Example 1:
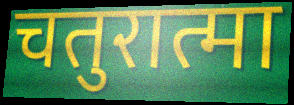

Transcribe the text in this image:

चतुरात्मा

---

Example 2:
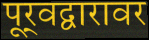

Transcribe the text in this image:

पूर्वद्वारावर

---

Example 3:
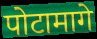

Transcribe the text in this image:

पोटामागे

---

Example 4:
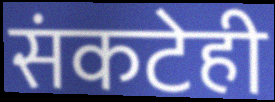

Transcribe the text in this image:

संकटेही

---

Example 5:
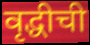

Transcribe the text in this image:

वृद्धीची